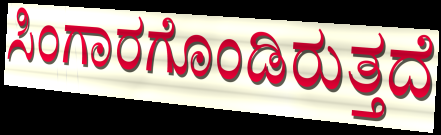
ಸಿಂಗಾರಗೊಂಡಿರುತ್ತದೆ